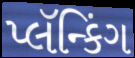
પ્લૅન્કિંગ